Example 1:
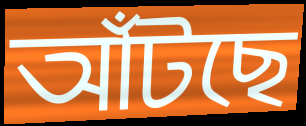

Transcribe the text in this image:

আঁটছে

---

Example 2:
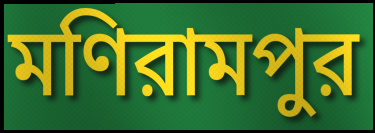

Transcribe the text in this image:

মণিরামপুর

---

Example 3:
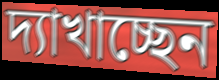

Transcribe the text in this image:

দ্যাখাচ্ছেন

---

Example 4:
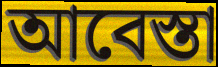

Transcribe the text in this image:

আবেস্তা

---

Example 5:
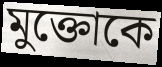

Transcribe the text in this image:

মুক্তোকে